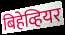
बिहेव्हियर